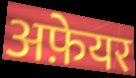
अफ़ेयर